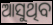
ଆସୁଥିବ